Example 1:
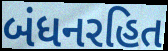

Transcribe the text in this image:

બંધનરહિત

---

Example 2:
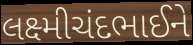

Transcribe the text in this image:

લક્ષ્મીચંદભાઈને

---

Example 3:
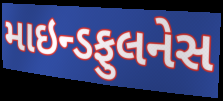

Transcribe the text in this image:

માઇન્ડફુલનેસ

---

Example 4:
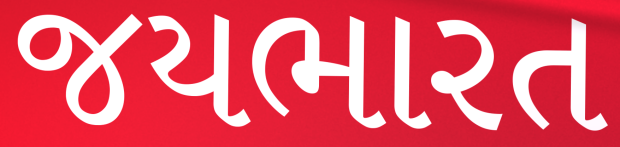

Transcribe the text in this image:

જયભારત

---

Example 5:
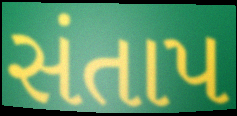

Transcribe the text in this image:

સંતાપ